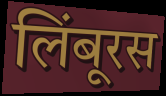
लिंबूरस